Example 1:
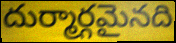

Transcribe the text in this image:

దుర్మార్గమైనది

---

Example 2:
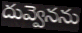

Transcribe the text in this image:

దువ్వెనను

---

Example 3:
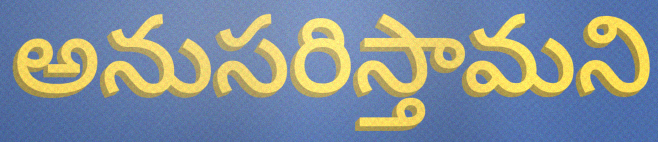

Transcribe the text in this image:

అనుసరిస్తామని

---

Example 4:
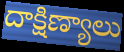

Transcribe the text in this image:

దాక్షిణ్యాలు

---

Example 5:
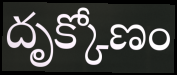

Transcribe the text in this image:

దృక్కోణం